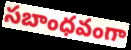
సబాంధవంగా